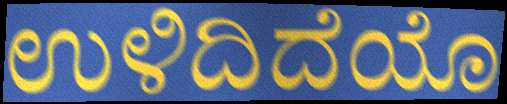
ಉಳಿದಿದೆಯೊ